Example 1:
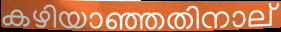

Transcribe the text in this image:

കഴിയാഞ്ഞതിനാല്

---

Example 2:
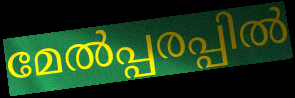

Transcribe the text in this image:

മേൽപ്പരപ്പിൽ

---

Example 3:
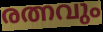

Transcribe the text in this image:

രത്നവും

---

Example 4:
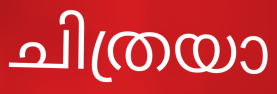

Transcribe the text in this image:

ചിത്രയാ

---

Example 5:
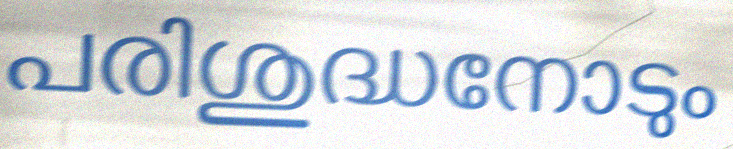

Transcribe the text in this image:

പരിശുദ്ധനോടും